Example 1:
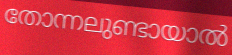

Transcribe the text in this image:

തോന്നലുണ്ടായാൽ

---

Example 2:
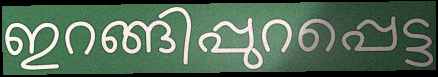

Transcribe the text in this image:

ഇറങ്ങിപ്പുറപ്പെട്ട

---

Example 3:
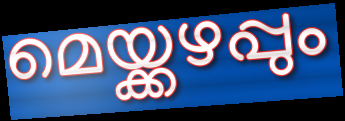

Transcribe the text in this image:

മെയ്ക്കഴപ്പും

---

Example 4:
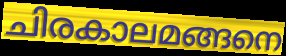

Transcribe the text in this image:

ചിരകാലമങ്ങനെ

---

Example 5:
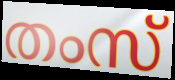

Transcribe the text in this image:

തംസ്